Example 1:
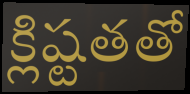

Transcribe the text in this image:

క్లిష్టతతో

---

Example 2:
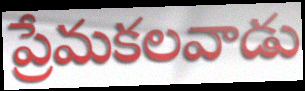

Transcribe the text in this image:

ప్రేమకలవాడు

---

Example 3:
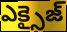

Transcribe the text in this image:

ఎక్సైజ్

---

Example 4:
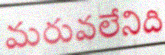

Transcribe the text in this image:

మరువలేనిది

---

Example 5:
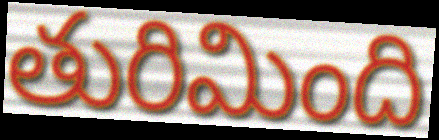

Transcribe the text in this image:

తురిమింది